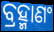
ବ୍ରହ୍ମାଣଂ